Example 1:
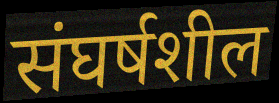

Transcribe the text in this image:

संघर्षशील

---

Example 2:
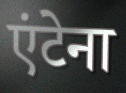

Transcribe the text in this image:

एंटेना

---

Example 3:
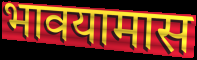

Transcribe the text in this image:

भावयामास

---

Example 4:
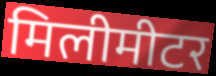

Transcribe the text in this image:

मिलीमीटर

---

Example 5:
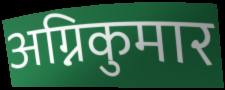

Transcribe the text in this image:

अग्निकुमार